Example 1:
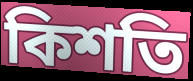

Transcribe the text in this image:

কিশতি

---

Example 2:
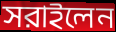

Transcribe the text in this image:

সরাইলেন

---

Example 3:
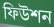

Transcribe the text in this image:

ফিউশন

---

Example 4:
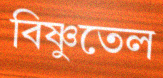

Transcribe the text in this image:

বিষ্ণুতেল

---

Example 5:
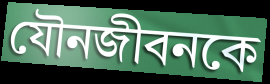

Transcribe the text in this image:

যৌনজীবনকে